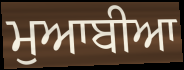
ਮੁਆਬੀਆ